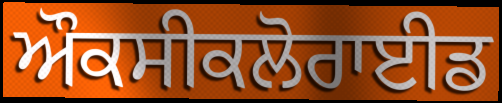
ਔਕਸੀਕਲੋਰਾਈਡ